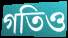
গতিও